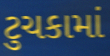
ટુચકામાં